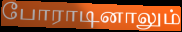
போராடினாலும்